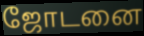
ஜோடனை